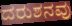
ದರುಶನವು